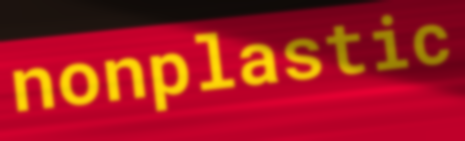
nonplastic